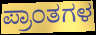
ಪ್ರಾಂತಗಳ